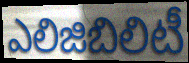
ఎలిజిబిలిటీ